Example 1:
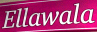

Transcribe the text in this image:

Ellawala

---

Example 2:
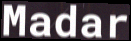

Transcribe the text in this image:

Madar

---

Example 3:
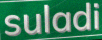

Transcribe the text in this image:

suladi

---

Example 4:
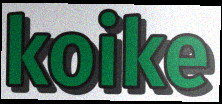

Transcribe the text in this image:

koike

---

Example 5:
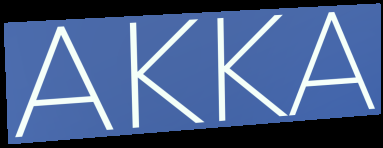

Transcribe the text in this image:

AKKA